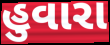
હુવારા